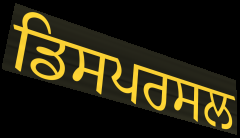
ਡਿਸਪਰਸਲ